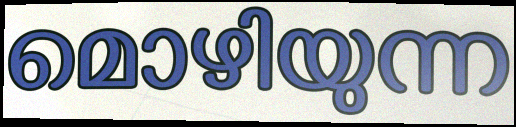
മൊഴിയുന്ന